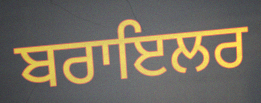
ਬਰਾਇਲਰ